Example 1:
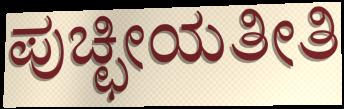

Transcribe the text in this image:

ಪುಚ್ಛೀಯತೀತಿ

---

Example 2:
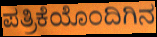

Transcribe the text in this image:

ಪತ್ರಿಕೆಯೊಂದಿಗಿನ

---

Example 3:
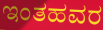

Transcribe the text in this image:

ಇಂತಹವರ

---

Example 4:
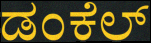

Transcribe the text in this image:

ಡಂಕೆಲ್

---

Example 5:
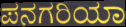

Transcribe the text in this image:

ಪನಗರಿಯಾ